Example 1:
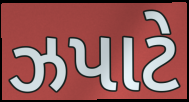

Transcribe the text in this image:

ઝપાટે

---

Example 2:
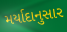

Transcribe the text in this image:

મર્યાદાનુસાર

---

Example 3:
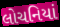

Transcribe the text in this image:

લોચનિયાં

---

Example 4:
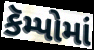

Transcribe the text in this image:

કૅમ્પોમાં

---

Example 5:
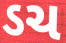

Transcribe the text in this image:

ડચ